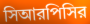
সিআরপিসির